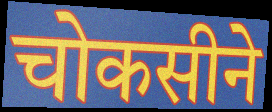
चोकसीने